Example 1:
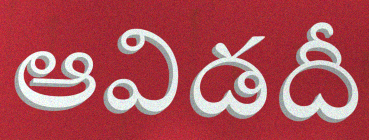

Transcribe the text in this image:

ఆవిడదీ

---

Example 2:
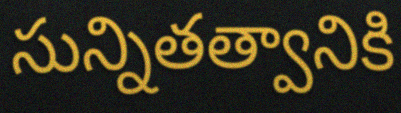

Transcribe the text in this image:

సున్నితత్వానికి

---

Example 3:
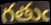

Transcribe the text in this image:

గతుఁ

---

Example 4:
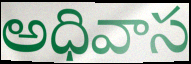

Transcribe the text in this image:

అధివాస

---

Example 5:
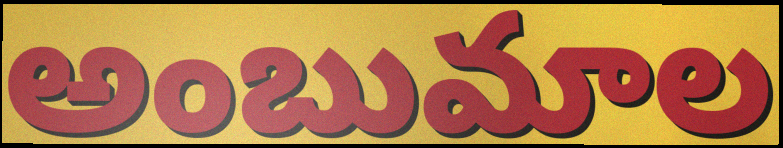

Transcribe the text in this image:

అంబుమాల